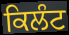
ਕਿਲੰਟ